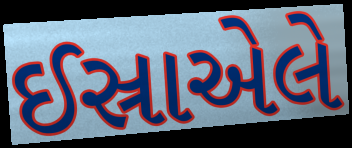
ઈસ્રાએલે